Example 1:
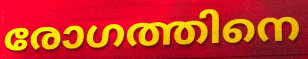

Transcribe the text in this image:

രോഗത്തിനെ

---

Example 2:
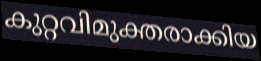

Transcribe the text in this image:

കുറ്റവിമുക്തരാക്കിയ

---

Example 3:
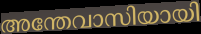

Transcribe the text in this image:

അന്തേവാസിയായി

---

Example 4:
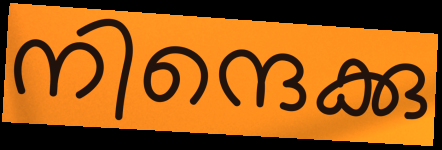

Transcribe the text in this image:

നിന്ദെക്കു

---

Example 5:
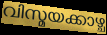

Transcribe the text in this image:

വിസ്മയക്കാഴ്ച